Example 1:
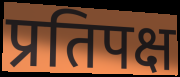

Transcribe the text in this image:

प्रतिपक्ष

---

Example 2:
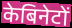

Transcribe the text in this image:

केबिनेटों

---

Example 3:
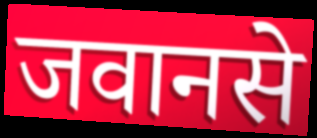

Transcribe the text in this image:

जवानसे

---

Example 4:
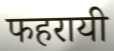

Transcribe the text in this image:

फहरायी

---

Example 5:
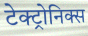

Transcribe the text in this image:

टेक्ट्रोनिक्स